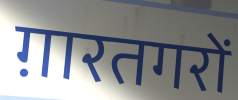
ग़ारतगरों